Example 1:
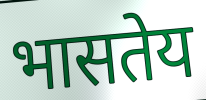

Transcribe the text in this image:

भासतेय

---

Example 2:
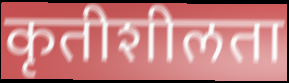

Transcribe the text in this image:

कृतीशीलता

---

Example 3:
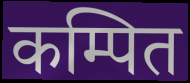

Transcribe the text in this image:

कम्पित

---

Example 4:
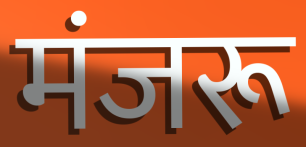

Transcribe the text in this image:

मंजरू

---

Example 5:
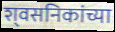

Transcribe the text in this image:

श्वसनिकांच्या